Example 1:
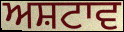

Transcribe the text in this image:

ਅਸ਼ਟਾਵ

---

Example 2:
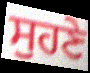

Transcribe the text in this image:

ਸੁਹਣੇ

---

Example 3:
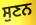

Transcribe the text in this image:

ਸੁਣਨ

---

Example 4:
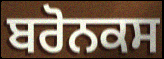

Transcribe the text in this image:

ਬਰੋਨਕਸ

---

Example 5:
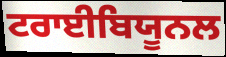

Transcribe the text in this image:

ਟਰਾਈਬਿਯੂਨਲ